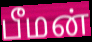
பீமன்